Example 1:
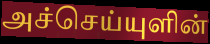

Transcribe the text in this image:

அச்செய்யுளின்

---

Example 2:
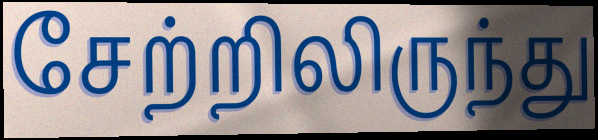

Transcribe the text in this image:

சேற்றிலிருந்து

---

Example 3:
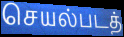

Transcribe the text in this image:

செயல்படத்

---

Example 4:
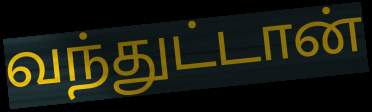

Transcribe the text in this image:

வந்துட்டான்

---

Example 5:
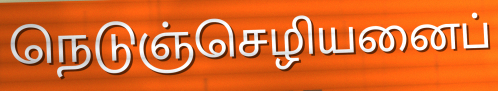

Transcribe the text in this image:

நெடுஞ்செழியனைப்